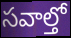
సవాల్తో